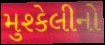
મુશ્કેલીનો